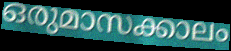
ഒരുമാസക്കാലം